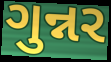
ગુન્નર